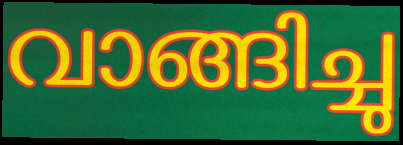
വാങ്ങിച്ചു